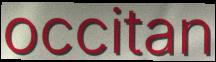
occitan